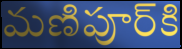
మణిపూర్‌కి